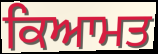
ਕਿਆਮਤ